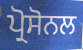
ਪ੍ਰੋਸੋਨਲ